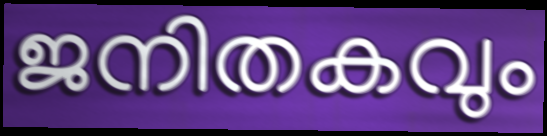
ജനിതകവും